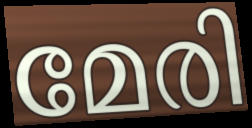
മേരി